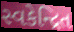
સ્વકેન્દ્રિત